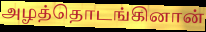
அழத்தொடங்கினான்